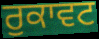
ਰੁਕਾਵਟ